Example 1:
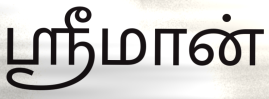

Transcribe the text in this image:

ஸ்ரீமான்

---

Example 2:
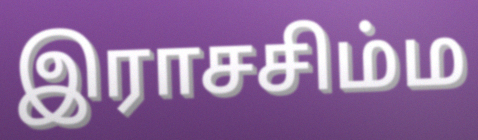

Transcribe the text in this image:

இராசசிம்ம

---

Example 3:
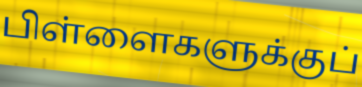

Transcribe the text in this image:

பிள்ளைகளுக்குப்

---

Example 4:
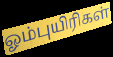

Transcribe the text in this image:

ஓம்புயிரிகள்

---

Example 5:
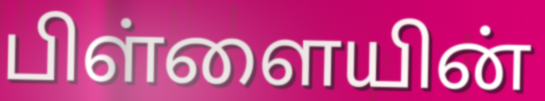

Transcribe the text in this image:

பிள்ளையின்